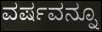
ವರ್ಷವನ್ನೂ